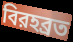
বিরহব্রত